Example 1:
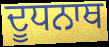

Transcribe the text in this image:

ਦੂਧਨਾਥ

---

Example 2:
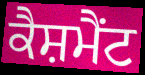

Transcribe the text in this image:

ਕੈਸ਼ਮੈਂਟ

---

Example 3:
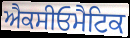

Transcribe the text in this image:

ਐਕਸੀਓਮੈਟਿਕ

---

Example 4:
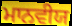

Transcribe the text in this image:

ਮਾਨਵੀਯ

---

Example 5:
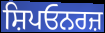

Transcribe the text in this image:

ਸ਼ਿਪਓਨਰਜ਼